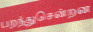
பறந்துசென்றன